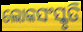
ଲୋକସଂସ୍କୃତି